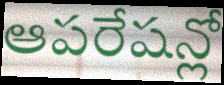
ఆపరేషన్లో